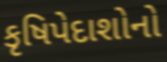
કૃષિપેદાશોનો